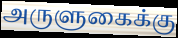
அருளுகைக்கு